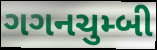
ગગનચુમ્બી